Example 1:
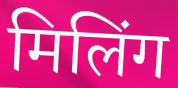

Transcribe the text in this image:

मिलिंग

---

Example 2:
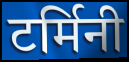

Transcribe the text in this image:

टर्मिनी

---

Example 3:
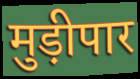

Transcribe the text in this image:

मुड़ीपार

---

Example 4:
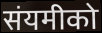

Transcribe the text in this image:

संयमीको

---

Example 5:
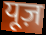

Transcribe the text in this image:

यूज़